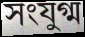
সংযুগ্ম